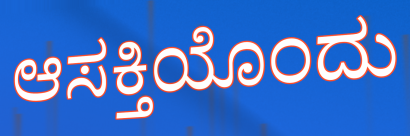
ಆಸಕ್ತಿಯೊಂದು